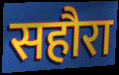
सहौरा